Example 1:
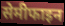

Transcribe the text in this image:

सेमीफाइन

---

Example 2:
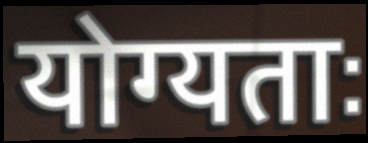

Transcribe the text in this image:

योग्यताः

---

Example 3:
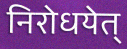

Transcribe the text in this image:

निरोधयेत्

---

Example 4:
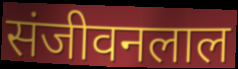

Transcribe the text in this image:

संजीवनलाल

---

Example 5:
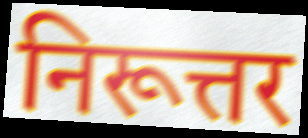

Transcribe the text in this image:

निरूत्तर